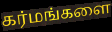
கர்மங்களை